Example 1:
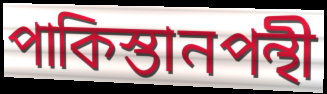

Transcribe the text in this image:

পাকিস্তানপন্থী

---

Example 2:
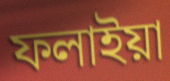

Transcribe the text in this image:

ফলাইয়া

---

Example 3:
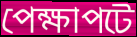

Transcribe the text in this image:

পেক্ষাপটে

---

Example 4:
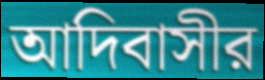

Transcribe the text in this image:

আদিবাসীর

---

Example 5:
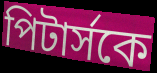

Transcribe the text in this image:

পিটার্সকে